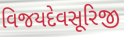
વિજયદેવસૂરિજી